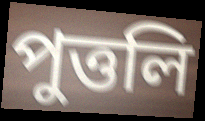
পুত্তলি